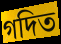
গদিত